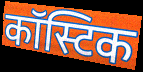
कॉस्टिक